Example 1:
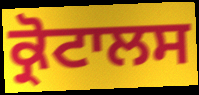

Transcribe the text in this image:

ਕ੍ਰੋਟਾਲਸ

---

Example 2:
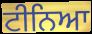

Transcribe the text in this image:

ਟੀਨਿਆ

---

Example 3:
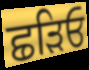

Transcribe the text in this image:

ਛੜਿਓ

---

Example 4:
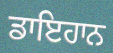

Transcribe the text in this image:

ਡਾਇਹਾਨ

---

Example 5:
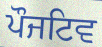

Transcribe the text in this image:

ਪੌਜਟਿਵ